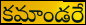
కమాండరే